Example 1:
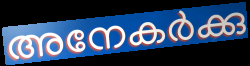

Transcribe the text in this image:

അനേകർക്കു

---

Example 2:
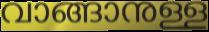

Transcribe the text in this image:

വാങ്ങാനുള്ള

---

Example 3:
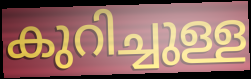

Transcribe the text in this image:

കുറിച്ചുള്ള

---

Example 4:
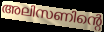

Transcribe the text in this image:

അലിസണിന്റെ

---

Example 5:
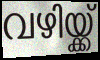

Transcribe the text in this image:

വഴിയ്ക്ക്